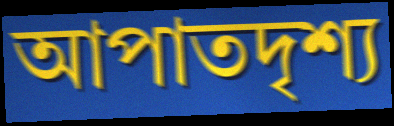
আপাতদৃশ্য